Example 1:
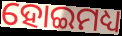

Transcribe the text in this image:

ହୋଇମଧ୍ୟ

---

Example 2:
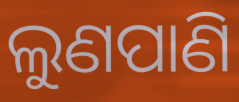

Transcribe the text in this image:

ଲୁଣପାଣି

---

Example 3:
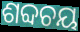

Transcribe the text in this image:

ଶବ୍ଦଚୟ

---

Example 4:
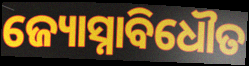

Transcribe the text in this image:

ଜ୍ୟୋସ୍ନାବିଧୌତ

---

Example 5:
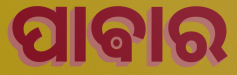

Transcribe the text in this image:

ପାଵାର